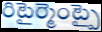
రిటైర్మెంట్పై